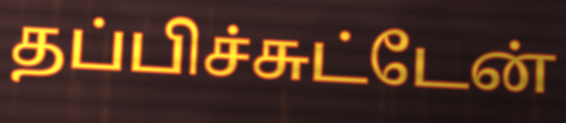
தப்பிச்சுட்டேன்